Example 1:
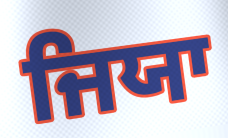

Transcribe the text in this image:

ਜਿਯਾ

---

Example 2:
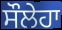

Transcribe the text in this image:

ਸੌਲੇਹਾ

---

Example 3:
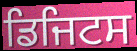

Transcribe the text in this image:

ਡਿਜਿਟਸ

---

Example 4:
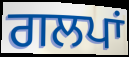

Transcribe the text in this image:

ਗਲਪਾਂ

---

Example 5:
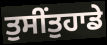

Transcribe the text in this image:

ਤੁਸੀਂਤੁਹਾਡੇ